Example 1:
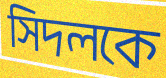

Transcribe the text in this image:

সিদলকে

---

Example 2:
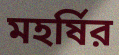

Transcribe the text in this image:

মহর্ষির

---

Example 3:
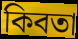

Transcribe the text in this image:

কিবতা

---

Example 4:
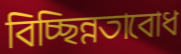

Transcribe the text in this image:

বিচ্ছিন্নতাবোধ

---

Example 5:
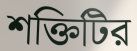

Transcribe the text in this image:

শক্তিটির